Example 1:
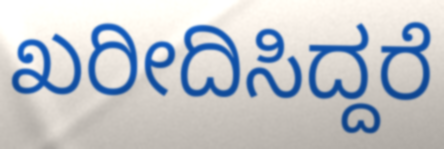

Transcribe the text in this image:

ಖರೀದಿಸಿದ್ದರೆ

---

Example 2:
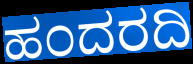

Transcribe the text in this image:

ಹಂದರದಿ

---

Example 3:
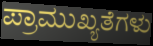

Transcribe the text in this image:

ಪ್ರಾಮುಖ್ಯತೆಗಳು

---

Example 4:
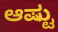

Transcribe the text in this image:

ಆಷ್ಟು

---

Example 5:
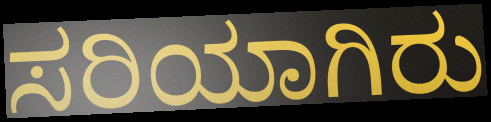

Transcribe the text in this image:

ಸರಿಯಾಗಿರು